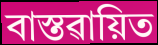
বাস্তৱায়িত